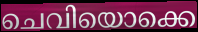
ചെവിയൊക്കെ